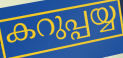
കറുപ്പയ്യ